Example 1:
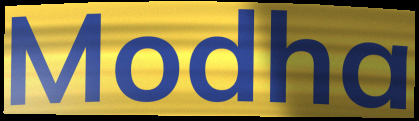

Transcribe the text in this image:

Modha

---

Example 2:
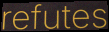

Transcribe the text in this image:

refutes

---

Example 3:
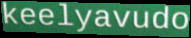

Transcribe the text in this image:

keelyavudo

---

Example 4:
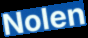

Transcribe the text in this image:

Nolen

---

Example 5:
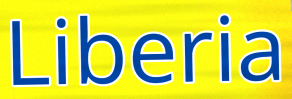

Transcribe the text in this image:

Liberia